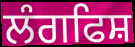
ਲੰਗਫਿਸ਼